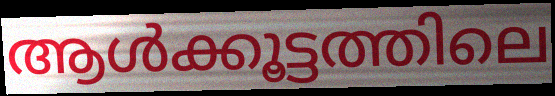
ആൾക്കൂട്ടത്തിലെ